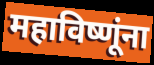
महाविष्णूंना